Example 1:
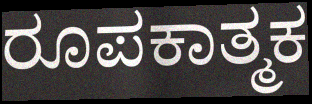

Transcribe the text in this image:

ರೂಪಕಾತ್ಮಕ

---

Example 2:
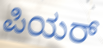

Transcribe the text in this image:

ಪಿಯರ್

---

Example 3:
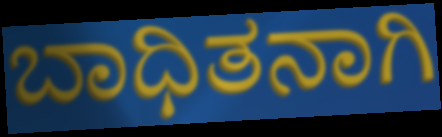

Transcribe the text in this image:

ಬಾಧಿತನಾಗಿ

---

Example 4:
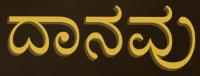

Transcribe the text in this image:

ದಾನವು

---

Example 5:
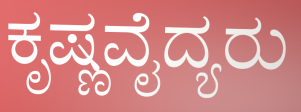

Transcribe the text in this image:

ಕೃಷ್ಣವೈದ್ಯರು